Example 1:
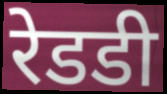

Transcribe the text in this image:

रेडडी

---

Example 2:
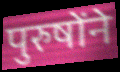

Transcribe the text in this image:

पुरुषोंने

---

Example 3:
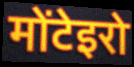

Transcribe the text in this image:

मोंटेइरो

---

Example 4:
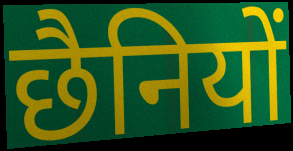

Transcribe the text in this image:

छैनियों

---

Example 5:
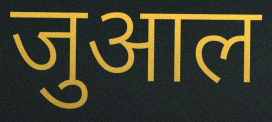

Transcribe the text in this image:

जुआल